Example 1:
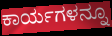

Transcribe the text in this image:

ಕಾರ್ಯಗಳನ್ನೂ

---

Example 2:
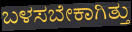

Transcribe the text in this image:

ಬಳಸಬೇಕಾಗಿತ್ತು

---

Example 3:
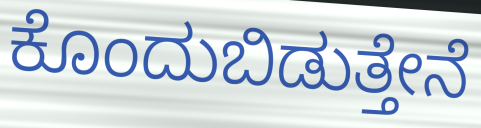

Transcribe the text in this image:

ಕೊಂದುಬಿಡುತ್ತೇನೆ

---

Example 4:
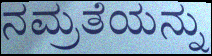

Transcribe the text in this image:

ನಮ್ರತೆಯನ್ನು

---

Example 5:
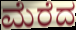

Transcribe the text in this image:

ಮೆರೆದ